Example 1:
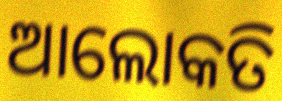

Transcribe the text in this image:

ଆଲୋକତି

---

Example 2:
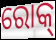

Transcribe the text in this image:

ରୋକ୍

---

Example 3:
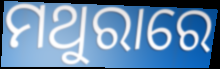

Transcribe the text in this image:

ମଥୁରାରେ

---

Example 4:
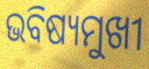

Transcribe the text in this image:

ଭବିଷ୍ୟମୁଖୀ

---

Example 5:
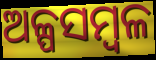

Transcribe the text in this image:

ଅଳ୍ପସମ୍ବଳ